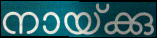
നായ്‌ക്കു